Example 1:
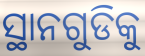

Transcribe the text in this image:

ସ୍ଥାନଗୁଡିକୁ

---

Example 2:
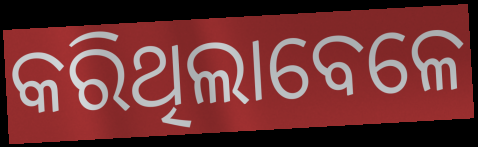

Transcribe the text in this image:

କରିଥିଲାବେଳେ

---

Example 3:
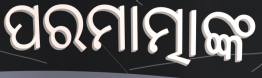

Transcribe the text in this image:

ପରମାତ୍ମାଙ୍କ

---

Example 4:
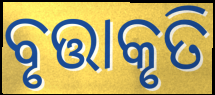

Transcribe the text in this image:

ବୃତ୍ତାକୃତି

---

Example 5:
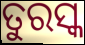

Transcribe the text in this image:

ତୁରସ୍କ